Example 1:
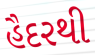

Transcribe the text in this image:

હૈદરથી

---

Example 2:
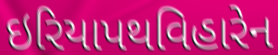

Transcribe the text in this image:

ઇરિયાપથવિહારેન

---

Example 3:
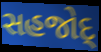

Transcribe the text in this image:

સહજોદ્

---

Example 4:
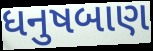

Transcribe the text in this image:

ધનુષબાણ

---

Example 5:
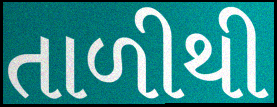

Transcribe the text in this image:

તાળીથી